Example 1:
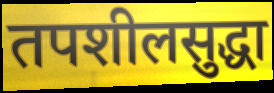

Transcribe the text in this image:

तपशीलसुद्धा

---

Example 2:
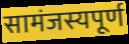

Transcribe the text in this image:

सामंजस्यपूर्ण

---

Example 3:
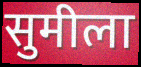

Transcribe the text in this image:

सुमीला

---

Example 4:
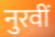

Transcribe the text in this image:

नुरवीं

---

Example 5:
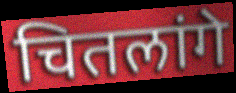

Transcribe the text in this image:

चितलांगे